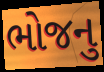
ભોજનુ